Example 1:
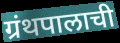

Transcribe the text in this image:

ग्रंथपालाची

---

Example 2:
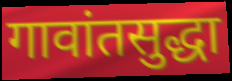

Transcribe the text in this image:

गावांतसुद्धा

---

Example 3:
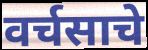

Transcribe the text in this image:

वर्चसाचे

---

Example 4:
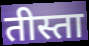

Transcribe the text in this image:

तीस्ता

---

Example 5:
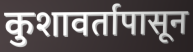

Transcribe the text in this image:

कुशावर्तापासून